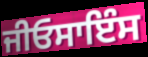
ਜੀਓਸਾਇੰਸ